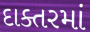
દાક્તરમાં